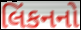
લિંકનનો